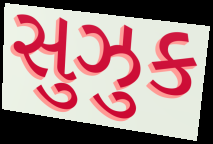
સુઝુક